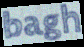
bagh